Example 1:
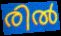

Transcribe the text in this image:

രിൽ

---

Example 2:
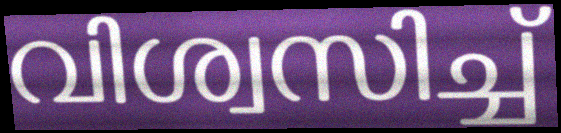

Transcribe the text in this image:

വിശ്വസിച്ച്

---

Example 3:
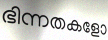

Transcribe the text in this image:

ഭിന്നതകളോ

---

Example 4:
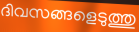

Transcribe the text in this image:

ദിവസങ്ങളെടുത്തു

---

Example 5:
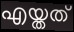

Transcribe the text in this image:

എയ്തത്